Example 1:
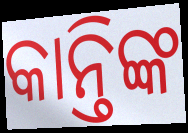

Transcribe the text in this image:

କାନ୍ତିଙ୍କ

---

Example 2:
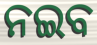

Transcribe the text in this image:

ନଇବ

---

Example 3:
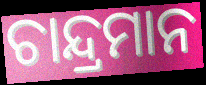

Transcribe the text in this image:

ଚାନ୍ଦ୍ରମାନ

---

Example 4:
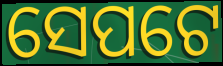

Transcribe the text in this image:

ସେପଟେ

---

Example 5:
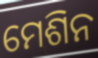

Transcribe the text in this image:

ମେଶିନ